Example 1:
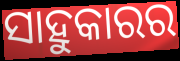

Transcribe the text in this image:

ସାହୁକାରର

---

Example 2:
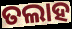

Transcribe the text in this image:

ତଲାହ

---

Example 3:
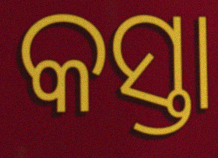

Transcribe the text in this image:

କସ୍ତା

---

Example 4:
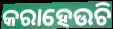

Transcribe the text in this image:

କରାହେଉଚି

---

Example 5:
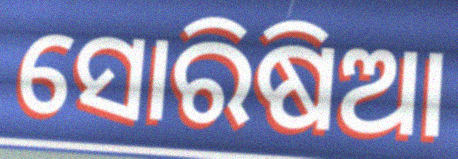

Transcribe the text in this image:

ସୋରିଷିଆ